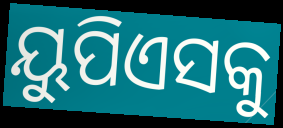
ୟୁପିଏସକୁ